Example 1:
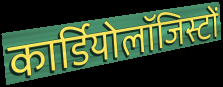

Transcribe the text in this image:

कार्डियोलॉजिस्टों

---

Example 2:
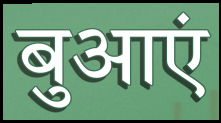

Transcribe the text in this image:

बुआएं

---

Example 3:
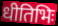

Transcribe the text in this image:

धीतिभिः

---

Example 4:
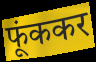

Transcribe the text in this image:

फूंककर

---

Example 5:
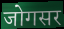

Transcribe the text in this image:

जोगसर